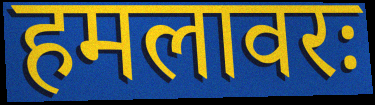
हमलावरः